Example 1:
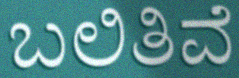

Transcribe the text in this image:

ಬಲಿತಿವೆ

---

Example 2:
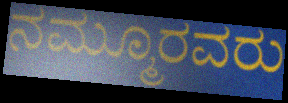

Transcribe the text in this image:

ನಮ್ಮೂರವರು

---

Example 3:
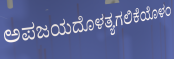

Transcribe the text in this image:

ಅಪಜಯದೊಳತ್ಯಗಲಿಕೆಯೊಳಂ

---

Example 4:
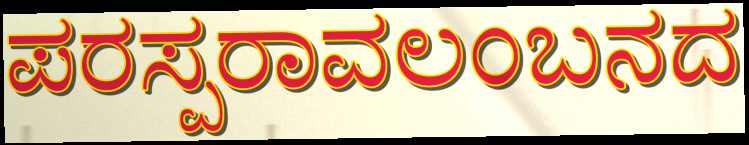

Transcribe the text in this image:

ಪರಸ್ಪರಾವಲಂಬನದ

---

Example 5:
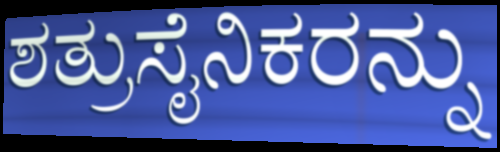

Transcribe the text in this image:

ಶತ್ರುಸೈನಿಕರನ್ನು